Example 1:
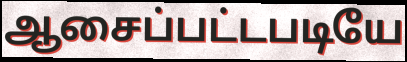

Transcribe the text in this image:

ஆசைப்பட்டபடியே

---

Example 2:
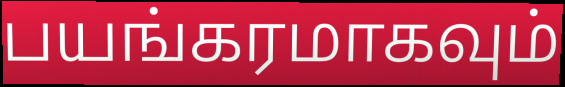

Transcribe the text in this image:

பயங்கரமாகவும்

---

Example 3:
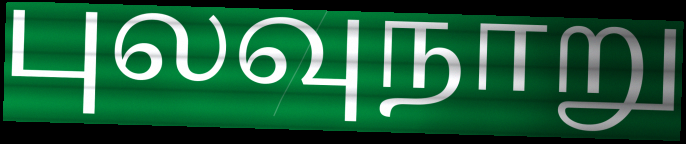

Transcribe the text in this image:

புலவுநாறு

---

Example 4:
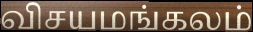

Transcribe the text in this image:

விசயமங்கலம்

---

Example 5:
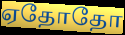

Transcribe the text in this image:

ஏதோதோ